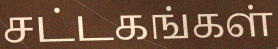
சட்டகங்கள்